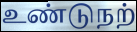
உண்டுநற்